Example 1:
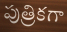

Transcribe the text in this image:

పుత్రికగా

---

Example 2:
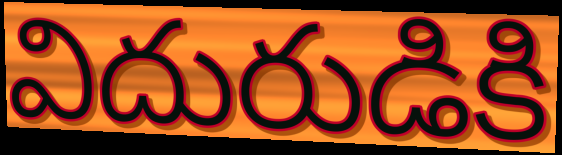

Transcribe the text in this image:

విదురుడికి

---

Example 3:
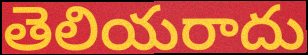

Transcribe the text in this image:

తెలియరాదు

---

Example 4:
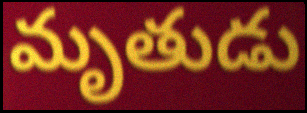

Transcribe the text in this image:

మృతుడు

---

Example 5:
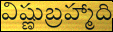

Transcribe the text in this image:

విష్ణుబ్రహ్మాది